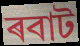
ৰবাট